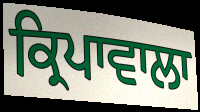
ਕ੍ਰਿਪਾਵਾਲਾ